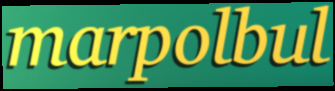
marpolbul